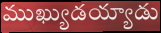
ముఖ్యుడయ్యాడు